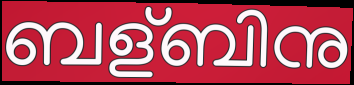
ബള്ബിനു